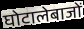
घोटालेबाजों